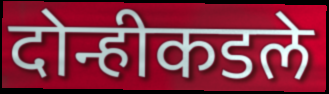
दोन्हीकडले